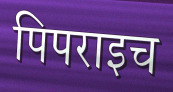
पिपराइच